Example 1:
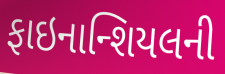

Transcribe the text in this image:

ફાઇનાન્શિયલની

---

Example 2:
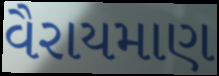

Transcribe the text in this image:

વૈરાયમાણ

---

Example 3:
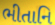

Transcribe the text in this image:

ભીતાનિ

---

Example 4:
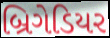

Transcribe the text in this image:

બ્રિગેડિયર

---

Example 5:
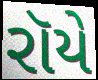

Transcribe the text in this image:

રૉયે